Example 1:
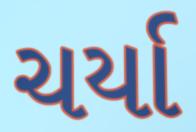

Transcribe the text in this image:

ચર્યા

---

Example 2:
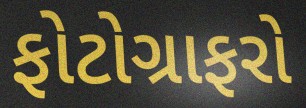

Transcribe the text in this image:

ફોટોગ્રાફરો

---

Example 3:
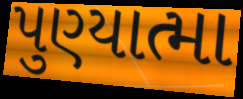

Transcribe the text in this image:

પુણ્યાત્મા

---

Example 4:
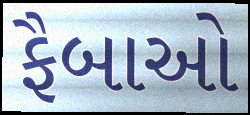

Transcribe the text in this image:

ફૈબાઓ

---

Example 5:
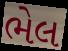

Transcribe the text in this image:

ભેલ